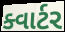
ક્વાર્ટર